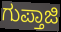
ಗುಪ್ತಾಜಿ